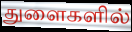
துளைகளில்